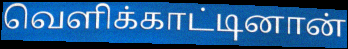
வெளிக்காட்டினான்